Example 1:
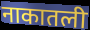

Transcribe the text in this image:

नाकातली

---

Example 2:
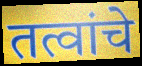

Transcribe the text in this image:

तत्वांचे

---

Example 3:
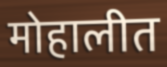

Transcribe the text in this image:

मोहालीत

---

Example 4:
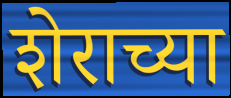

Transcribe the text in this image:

शेराच्या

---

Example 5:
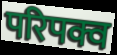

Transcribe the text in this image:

परिपक्व